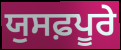
ਯੁਸਫ਼ਪੂਰੇ